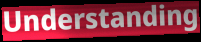
Understanding